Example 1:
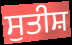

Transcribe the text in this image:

ਸੁਤੀਸ਼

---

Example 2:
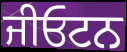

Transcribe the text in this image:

ਜੀਓਟਨ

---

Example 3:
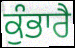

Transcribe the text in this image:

ਕੁੰਭਾਰੈ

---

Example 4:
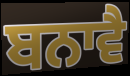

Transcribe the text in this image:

ਬਨਾਵੈ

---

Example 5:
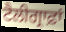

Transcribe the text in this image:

ਟੈਲੀਗ੍ਰਾਫ਼ਾਂ